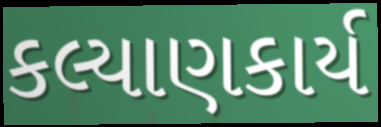
કલ્યાણકાર્ય